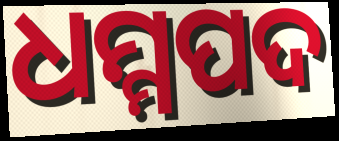
ଧମ୍ମପଦ